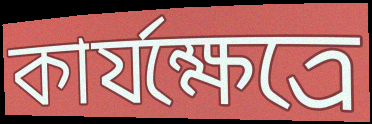
কার্যক্ষেত্রে